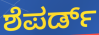
ಶೆಪರ್ಡ್